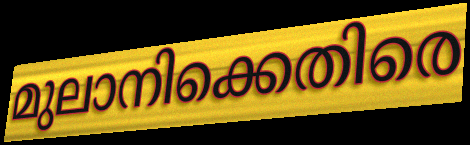
മുലാനിക്കെതിരെ